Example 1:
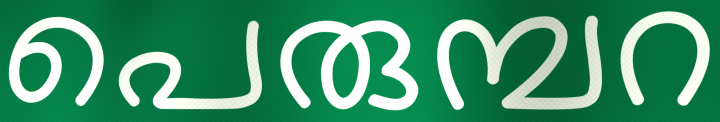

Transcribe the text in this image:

പെരുമ്പറ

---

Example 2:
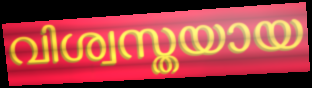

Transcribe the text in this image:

വിശ്വസ്തയായ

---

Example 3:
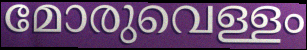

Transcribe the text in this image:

മോരുവെള്ളം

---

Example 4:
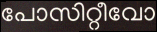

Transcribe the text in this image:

പോസിറ്റീവോ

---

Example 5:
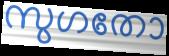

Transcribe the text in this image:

സുഗതോ